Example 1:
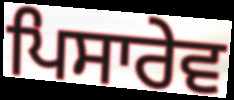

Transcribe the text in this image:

ਪਿਸਾਰੇਵ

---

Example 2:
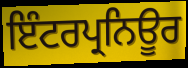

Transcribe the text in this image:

ਇੰਟਰਪ੍ਰਨਿਊਰ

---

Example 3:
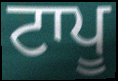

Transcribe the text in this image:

ਟਾਪੂ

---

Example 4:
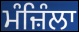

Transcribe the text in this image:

ਮੰਜ਼ਿੰਲਾ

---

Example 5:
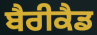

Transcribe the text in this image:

ਬੈਰੀਕੈਡ